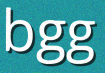
bgg